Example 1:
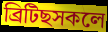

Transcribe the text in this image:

ব্ৰিটিছসকলে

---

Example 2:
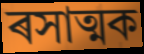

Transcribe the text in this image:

ৰসাত্মক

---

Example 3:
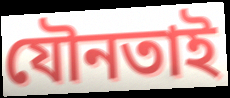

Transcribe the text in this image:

যৌনতাই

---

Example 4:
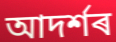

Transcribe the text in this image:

আদৰ্শৰ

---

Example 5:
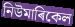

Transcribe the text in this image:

নিউমাৰিকেল